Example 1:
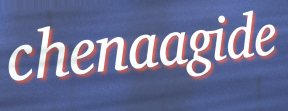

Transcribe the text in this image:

chenaagide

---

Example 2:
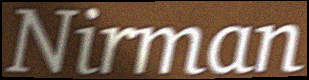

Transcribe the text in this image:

Nirman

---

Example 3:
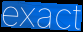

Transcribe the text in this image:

exact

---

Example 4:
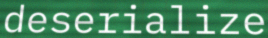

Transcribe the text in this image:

deserialize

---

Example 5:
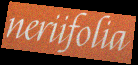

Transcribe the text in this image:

neriifolia